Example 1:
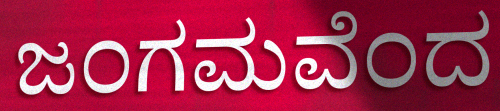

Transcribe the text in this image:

ಜಂಗಮವೆಂದ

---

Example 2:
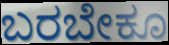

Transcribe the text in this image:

ಬರಬೇಕೂ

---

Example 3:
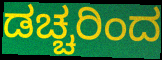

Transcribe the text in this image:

ಡಚ್ಚರಿಂದ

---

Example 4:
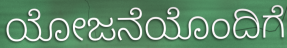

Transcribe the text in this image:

ಯೋಜನೆಯೊಂದಿಗೆ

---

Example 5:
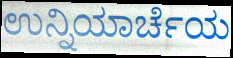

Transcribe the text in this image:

ಉನ್ನಿಯಾರ್ಚೆಯ